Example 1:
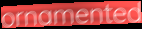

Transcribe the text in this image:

ornamented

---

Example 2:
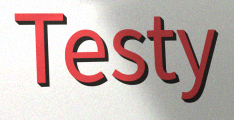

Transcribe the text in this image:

Testy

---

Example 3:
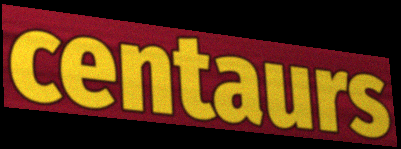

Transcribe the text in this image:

centaurs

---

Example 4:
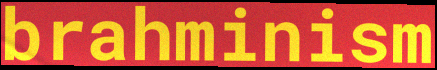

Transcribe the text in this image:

brahminism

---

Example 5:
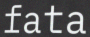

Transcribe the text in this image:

fata